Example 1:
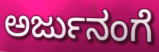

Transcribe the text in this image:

ಅರ್ಜುನಂಗೆ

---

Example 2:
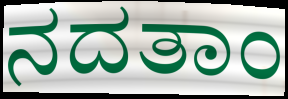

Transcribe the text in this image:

ನದತಾಂ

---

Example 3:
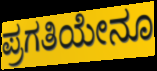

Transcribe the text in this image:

ಪ್ರಗತಿಯೇನೂ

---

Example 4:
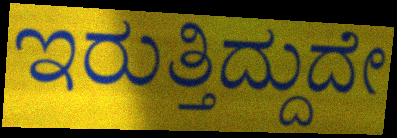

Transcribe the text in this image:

ಇರುತ್ತಿದ್ದುದೇ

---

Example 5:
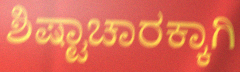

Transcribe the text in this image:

ಶಿಷ್ಟಾಚಾರಕ್ಕಾಗಿ